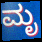
ಮೃ